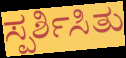
ಸ್ಪರ್ಶಿಸಿತು